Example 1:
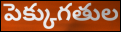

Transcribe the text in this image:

పెక్కుగతుల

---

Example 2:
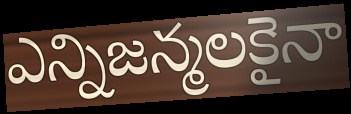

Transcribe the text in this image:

ఎన్నిజన్మలకైనా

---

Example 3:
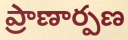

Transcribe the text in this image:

ప్రాణార్పణ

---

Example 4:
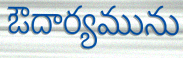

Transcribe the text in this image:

ఔదార్యమును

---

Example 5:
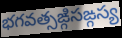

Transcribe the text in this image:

భగవత్సఙ్గిసఙ్గస్య